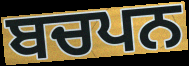
ਬਚਪਨ